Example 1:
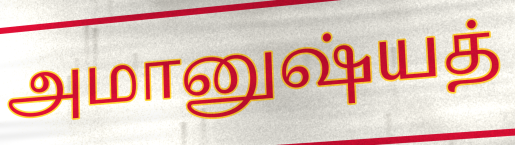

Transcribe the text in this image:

அமானுஷ்யத்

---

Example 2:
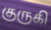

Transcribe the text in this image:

குருகி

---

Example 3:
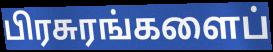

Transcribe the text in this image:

பிரசுரங்களைப்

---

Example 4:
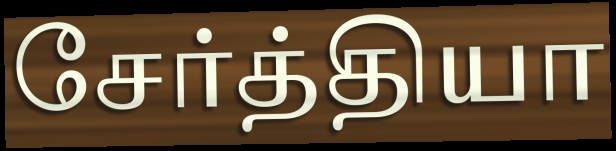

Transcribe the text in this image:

சேர்த்தியா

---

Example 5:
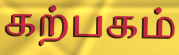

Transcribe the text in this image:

கற்பகம்